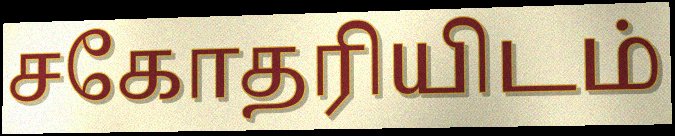
சகோதரியிடம்